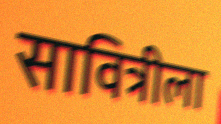
सावित्रीला